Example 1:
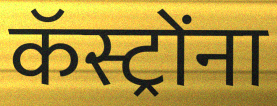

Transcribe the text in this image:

कॅस्ट्रोंना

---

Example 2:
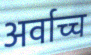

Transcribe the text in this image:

अर्वाच्च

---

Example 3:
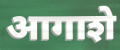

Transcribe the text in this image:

आगाशे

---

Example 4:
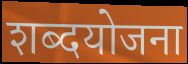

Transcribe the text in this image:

शब्दयोजना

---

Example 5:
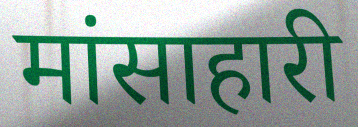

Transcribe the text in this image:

मांसाहारी